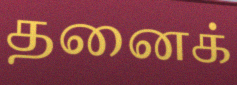
தனைக்